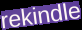
rekindle